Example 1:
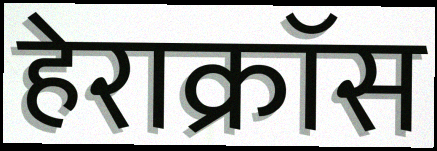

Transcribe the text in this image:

हेराक्रॉस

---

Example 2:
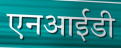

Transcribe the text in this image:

एनआईडी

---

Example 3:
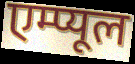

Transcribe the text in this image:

एम्प्यूल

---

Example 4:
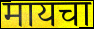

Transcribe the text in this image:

मायचा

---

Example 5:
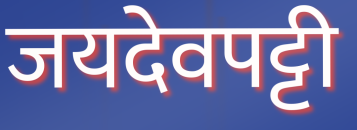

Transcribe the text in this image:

जयदेवपट्टी